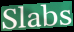
Slabs